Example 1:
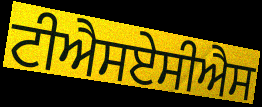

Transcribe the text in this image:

ਟੀਐਸਏਸੀਐਸ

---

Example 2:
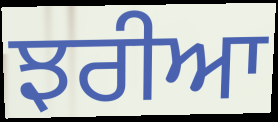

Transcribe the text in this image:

ਝਰੀਆ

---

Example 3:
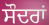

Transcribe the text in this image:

ਸੌਦਰਾਂ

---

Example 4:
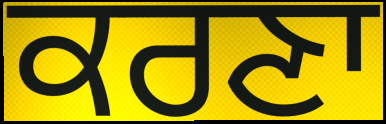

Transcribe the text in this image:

ਕਰਣਾ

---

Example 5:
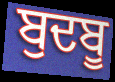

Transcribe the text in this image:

ਬੁਦਬੂ